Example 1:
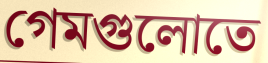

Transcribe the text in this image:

গেমগুলোতে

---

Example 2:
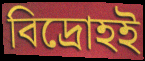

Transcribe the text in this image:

বিদ্রোহই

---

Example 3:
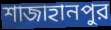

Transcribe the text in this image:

শাজাহানপুর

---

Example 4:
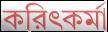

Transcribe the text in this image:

করিৎকর্মা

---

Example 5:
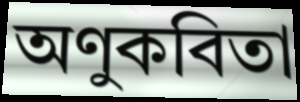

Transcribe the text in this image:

অণুকবিতা